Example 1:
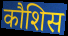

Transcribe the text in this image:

कौशिस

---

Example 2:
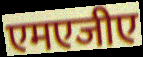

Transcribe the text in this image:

एमएजीए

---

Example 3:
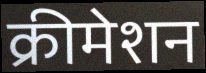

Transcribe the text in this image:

क्रीमेशन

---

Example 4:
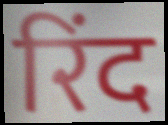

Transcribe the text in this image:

रिंद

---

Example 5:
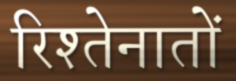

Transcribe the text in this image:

रिश्तेनातों